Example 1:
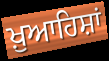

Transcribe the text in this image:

ਖ਼ੁਆਹਿਸ਼ਾਂ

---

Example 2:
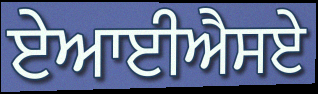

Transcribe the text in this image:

ਏਆਈਐਸਏ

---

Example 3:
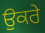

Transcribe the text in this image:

ਉਕਰੇ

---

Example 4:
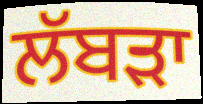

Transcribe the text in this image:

ਲੱਬੜਾ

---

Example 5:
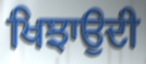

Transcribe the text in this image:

ਖਿਝਾਉਦੀ